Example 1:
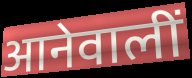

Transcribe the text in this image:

आनेवालीं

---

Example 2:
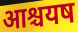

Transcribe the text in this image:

आश्चयष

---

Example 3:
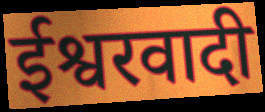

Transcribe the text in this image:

ईश्वरवादी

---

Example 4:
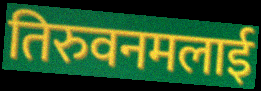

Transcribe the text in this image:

तिरुवनमलाई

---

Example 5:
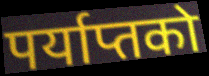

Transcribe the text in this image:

पर्याप्तको